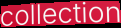
collection